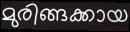
മുരിങ്ങക്കായ